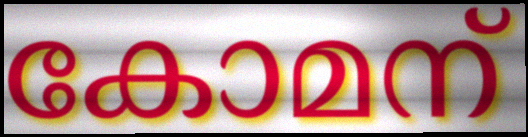
കോമന്